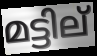
മട്ടില്